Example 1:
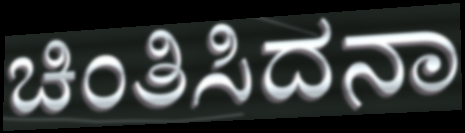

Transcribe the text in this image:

ಚಿಂತಿಸಿದನಾ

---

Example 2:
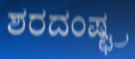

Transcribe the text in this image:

ಶರದಂಷ್ಟ್ರ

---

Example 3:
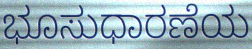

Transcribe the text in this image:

ಭೂಸುಧಾರಣೆಯ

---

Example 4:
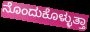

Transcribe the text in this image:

ನೊಂದುಕೊಳ್ಳುತ್ತಾ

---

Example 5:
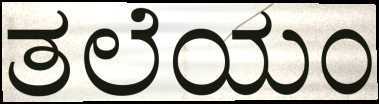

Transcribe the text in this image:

ತಲೆಯಂ